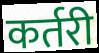
कर्तरी